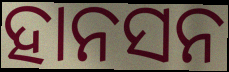
ହାନସନ